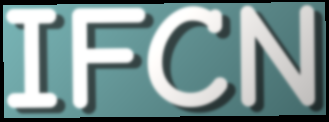
IFCN